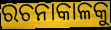
ରଚନାକାଳକୁ